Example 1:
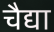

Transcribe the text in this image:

चैद्या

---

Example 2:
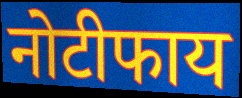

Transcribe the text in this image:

नोटीफाय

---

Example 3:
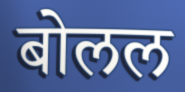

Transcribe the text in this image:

बोलल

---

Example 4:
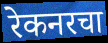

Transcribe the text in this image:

रेकनरचा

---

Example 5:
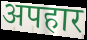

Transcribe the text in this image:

अपहार